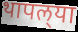
थापल्या